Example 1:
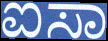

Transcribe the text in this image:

ಐಸಾ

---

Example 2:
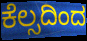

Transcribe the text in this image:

ಕೆಲ್ಸದಿಂದ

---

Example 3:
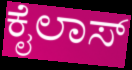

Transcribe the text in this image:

ಕೈಲಾಸ್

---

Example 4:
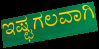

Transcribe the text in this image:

ಇಷ್ಟಗಲವಾಗಿ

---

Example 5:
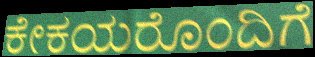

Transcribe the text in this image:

ಕೇಕಯರೊಂದಿಗೆ